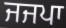
ਜਜਪਾ